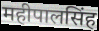
महीपालसिंह